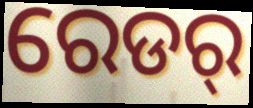
ରେଡର୍